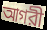
আগরী